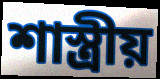
শাস্ত্রীয়